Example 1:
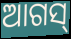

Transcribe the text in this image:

ଆଗସ୍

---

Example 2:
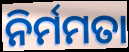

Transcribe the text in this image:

ନିର୍ମମତା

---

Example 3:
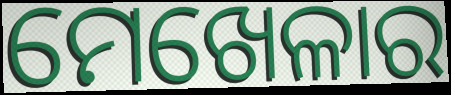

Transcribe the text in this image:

ମେଖେଳାର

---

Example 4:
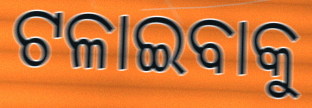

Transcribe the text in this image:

ଟଳାଇବାକୁ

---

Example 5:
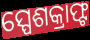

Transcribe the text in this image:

ସ୍ପେଶକ୍ରାଫ୍ଟ